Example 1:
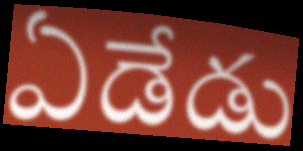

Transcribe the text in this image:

ఏడేడు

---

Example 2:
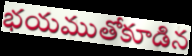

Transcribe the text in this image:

భయముతోకూడిన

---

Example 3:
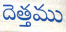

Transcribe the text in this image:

దెత్తము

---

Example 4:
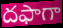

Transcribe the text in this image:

దఫాగా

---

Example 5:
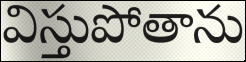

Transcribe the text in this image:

విస్తుపోతాను